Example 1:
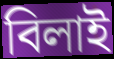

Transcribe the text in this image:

বিলাই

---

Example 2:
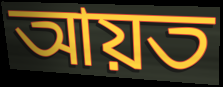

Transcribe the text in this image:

আয়ত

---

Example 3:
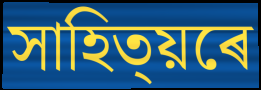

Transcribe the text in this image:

সাহিত্য়ৰে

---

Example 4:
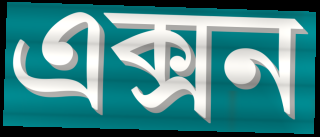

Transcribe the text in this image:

এক্সন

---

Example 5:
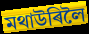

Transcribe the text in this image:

মথাউৰিলৈ